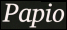
Papio